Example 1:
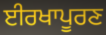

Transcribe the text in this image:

ਈਰਖਾਪੂਰਣ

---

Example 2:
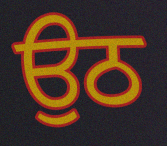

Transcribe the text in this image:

ਉਠ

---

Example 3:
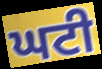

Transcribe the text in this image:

ਘਟੀ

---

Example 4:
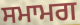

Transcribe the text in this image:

ਸਮਾਮਗ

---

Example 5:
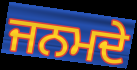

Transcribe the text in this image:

ਜਨਮਦੇ